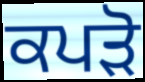
ਕਪੜੋ